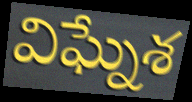
విఘ్నేశ